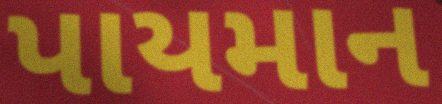
પાયમાન